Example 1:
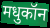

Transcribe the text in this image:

मधुकॉन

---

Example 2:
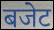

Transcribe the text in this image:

बजेट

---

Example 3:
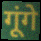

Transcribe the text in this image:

गूंगे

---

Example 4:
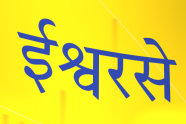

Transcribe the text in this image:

ईश्वरसे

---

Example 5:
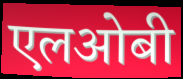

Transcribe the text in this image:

एलओबी